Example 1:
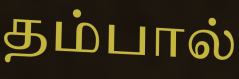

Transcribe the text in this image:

தம்பால்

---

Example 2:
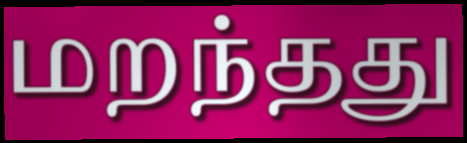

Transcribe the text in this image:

மறந்தது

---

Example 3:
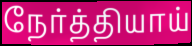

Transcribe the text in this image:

நேர்த்தியாய்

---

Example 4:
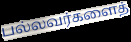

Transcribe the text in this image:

பல்லவர்களைத்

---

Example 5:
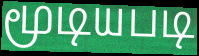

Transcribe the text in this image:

மூடியபடி